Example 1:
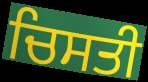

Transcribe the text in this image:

ਚਿਸਤੀ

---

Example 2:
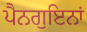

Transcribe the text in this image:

ਪੈਨਗੁਇਨਾਂ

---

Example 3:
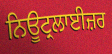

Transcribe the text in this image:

ਨਿਊਟ੍ਰਲਾਈਜ਼ਰ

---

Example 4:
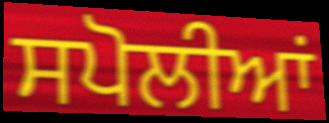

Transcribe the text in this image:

ਸਪੋਲੀਆਂ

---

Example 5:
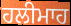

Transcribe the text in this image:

ਹਲੀਮਾਹ